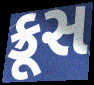
ક્રૂસ